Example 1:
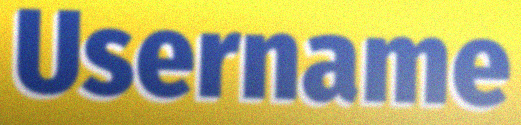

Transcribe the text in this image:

Username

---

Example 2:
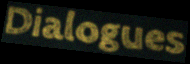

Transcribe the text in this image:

Dialogues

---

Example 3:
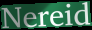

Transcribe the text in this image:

Nereid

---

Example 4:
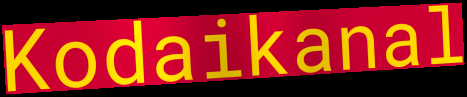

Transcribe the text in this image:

Kodaikanal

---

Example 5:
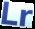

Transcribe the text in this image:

Lr